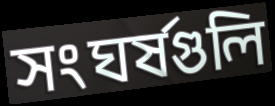
সংঘর্ষগুলি